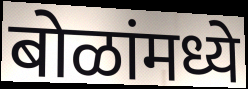
बोळांमध्ये